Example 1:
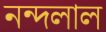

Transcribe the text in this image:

নন্দলাল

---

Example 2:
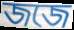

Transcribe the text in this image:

জজে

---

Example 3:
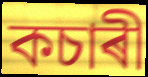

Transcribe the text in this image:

কচাৰী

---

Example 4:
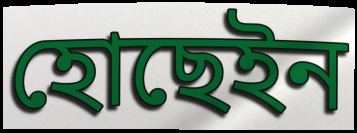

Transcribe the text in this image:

হোছেইন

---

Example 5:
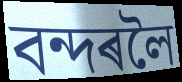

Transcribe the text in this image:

বন্দৰলৈ